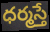
ధర్మస్తే